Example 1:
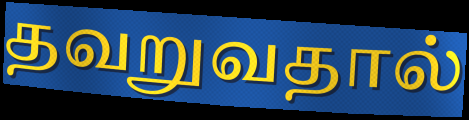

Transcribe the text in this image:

தவறுவதால்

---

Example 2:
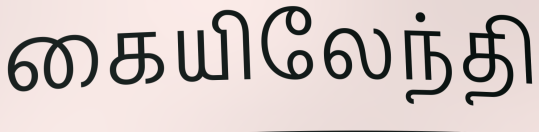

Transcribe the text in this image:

கையிலேந்தி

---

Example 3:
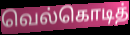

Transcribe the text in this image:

வெல்கொடித்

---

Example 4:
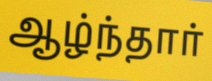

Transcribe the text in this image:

ஆழ்ந்தார்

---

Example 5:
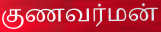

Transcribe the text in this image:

குணவர்மன்